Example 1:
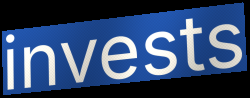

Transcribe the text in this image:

invests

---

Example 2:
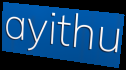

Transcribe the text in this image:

ayithu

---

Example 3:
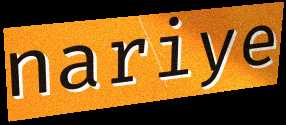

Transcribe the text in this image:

nariye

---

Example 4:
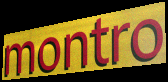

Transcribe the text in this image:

montro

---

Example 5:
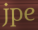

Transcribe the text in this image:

jpe